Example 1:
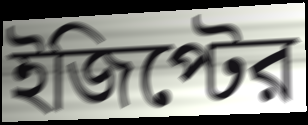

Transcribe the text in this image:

ইজিপ্টের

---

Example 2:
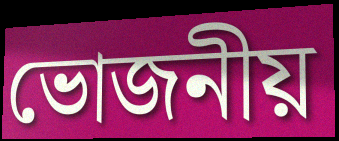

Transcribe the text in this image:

ভোজনীয়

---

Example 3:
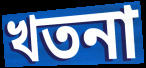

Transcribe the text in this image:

খতনা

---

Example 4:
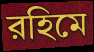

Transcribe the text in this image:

রহিমে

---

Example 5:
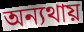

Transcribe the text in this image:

অন্যথায়